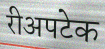
रीअपटेक